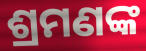
ଶ୍ରମଣଙ୍କ